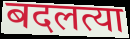
बदलत्या